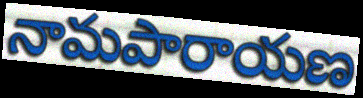
నామపారాయణ